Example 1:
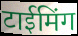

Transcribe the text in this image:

टाईमिंग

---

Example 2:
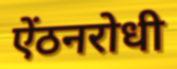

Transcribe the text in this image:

ऐंठनरोधी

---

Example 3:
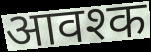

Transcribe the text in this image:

आवश्क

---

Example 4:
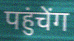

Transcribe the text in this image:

पहुंचेंग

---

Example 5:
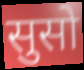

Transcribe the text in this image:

सुसो